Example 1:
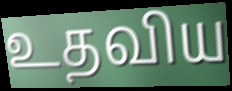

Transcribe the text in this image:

உதவிய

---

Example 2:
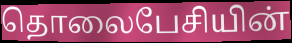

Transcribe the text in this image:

தொலைபேசியின்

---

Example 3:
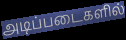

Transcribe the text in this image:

அடிப்படைகளில்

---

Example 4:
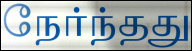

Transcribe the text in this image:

நேர்ந்தது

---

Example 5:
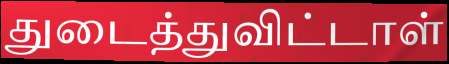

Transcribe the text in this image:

துடைத்துவிட்டாள்